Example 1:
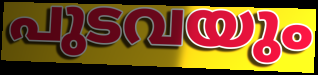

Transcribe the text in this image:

പുടവയും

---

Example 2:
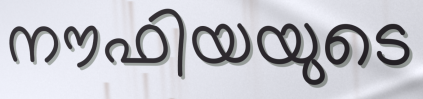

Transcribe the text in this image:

നൗഫിയയുടെ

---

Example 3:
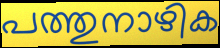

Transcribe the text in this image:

പത്തുനാഴിക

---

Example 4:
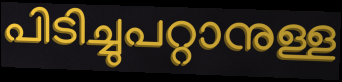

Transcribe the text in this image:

പിടിച്ചുപറ്റാനുള്ള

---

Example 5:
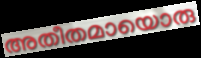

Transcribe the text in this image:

അതീതമായൊരു